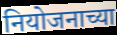
नियोजनाच्या